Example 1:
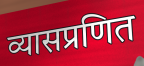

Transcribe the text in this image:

व्यासप्रणित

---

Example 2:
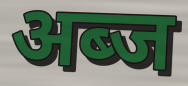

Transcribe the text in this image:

अब्ज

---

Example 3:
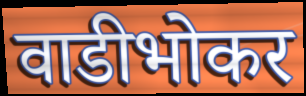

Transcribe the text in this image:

वाडीभोकर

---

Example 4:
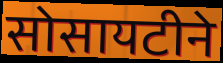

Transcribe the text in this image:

सोसायटीने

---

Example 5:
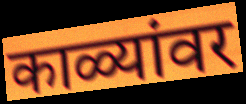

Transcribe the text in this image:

काळ्यांवर